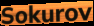
Sokurov